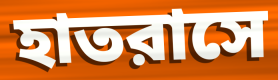
হাতরাসে